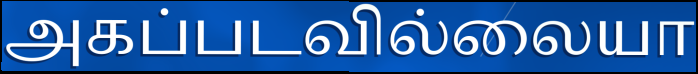
அகப்படவில்லையா